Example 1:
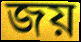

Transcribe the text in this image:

জয়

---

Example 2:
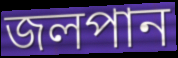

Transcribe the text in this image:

জলপান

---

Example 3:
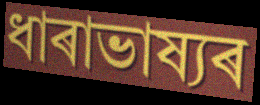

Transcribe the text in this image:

ধাৰাভাষ্যৰ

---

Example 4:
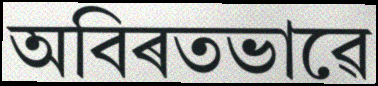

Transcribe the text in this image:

অবিৰতভাৱে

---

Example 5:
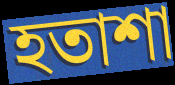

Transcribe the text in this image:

হতাশা